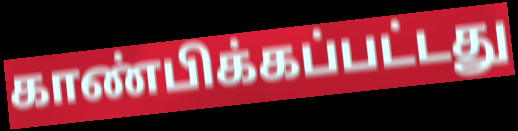
காண்பிக்கப்பட்டது